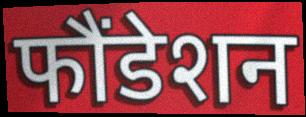
फौंडेशन